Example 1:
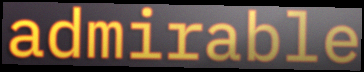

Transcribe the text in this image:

admirable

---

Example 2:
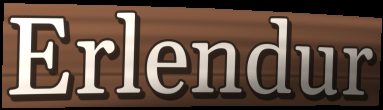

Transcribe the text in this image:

Erlendur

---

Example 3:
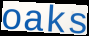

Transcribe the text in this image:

oaks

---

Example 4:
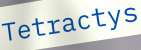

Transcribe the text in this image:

Tetractys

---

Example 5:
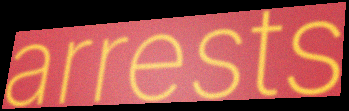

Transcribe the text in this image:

arrests